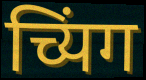
च्यिंग